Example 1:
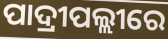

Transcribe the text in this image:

ପାଦ୍ରୀପଲ୍ଲୀରେ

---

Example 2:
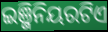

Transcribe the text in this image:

ଇଞ୍ଜିନିୟରଟିଏ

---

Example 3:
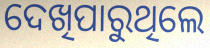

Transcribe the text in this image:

ଦେଖିପାରୁଥିଲେ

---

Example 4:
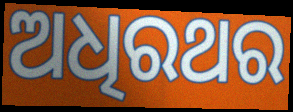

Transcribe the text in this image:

ଅଧିରଥର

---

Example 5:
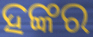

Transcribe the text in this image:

ହଙ୍କର